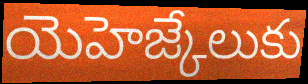
యెహెజ్కేలుకు